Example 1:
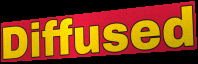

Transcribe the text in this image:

Diffused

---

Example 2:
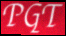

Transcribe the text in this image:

PGT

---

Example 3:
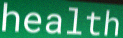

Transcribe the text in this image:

health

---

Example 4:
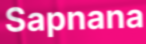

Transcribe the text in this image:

Sapnana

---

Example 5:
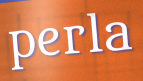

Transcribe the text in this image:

perla